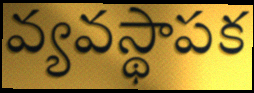
వ్యవస్థాపక